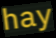
hay